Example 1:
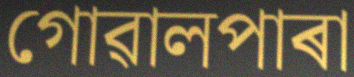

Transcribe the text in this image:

গোৱালপাৰা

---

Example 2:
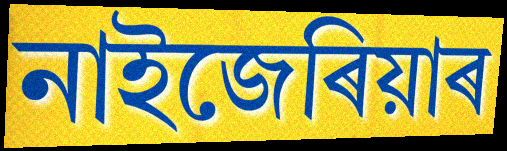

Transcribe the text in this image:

নাইজেৰিয়াৰ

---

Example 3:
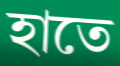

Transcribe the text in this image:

হাতে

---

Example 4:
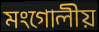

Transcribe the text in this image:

মংগোলীয়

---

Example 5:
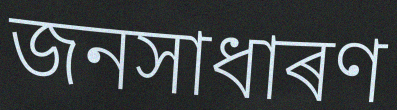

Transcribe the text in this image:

জনসাধাৰণ